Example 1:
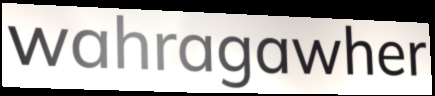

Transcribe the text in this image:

wahragawher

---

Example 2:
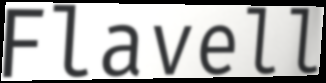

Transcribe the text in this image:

Flavell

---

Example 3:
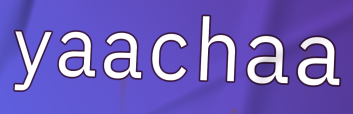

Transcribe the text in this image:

yaachaa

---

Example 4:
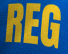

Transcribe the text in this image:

REG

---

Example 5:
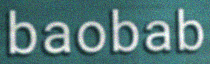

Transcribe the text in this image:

baobab